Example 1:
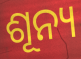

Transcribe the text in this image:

ଶୂନ୍ୟ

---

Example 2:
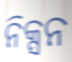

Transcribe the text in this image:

ନିକ୍ସନ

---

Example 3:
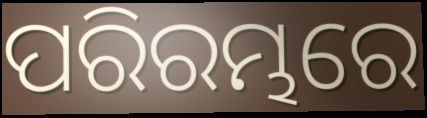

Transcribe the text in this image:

ପରିରମ୍ଭରେ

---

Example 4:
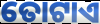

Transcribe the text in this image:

ତୋଟାଏ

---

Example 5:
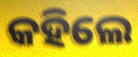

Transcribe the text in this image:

କହିଲେ